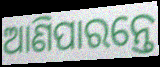
ଆଣିପାରନ୍ତେ